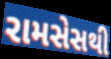
રામસેસથી